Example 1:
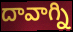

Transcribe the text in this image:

దావాగ్ని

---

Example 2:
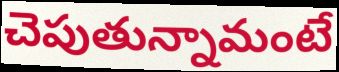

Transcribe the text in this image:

చెపుతున్నామంటే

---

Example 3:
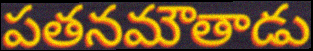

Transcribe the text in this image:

పతనమౌతాడు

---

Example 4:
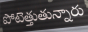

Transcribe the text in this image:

పోటెత్తుతున్నారు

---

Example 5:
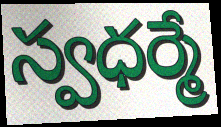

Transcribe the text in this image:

స్వధర్మే